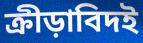
ক্রীড়াবিদই